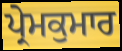
ਪ੍ਰੇਮਕੁਮਾਰ